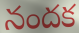
నందక